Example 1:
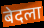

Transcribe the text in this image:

बेदला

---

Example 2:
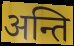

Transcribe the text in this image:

अन्ति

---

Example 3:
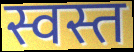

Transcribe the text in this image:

स्वस्त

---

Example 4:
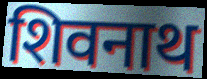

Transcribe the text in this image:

शिवनाथ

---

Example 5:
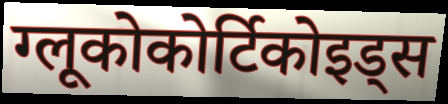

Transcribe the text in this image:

ग्लूकोकोर्टिकोइड्स